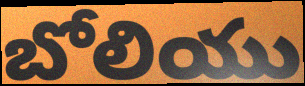
బోలియు